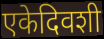
एकेदिवशी